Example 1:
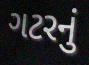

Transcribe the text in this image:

ગટરનું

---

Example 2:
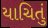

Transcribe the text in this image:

યાચિતું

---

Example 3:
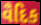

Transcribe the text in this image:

વૈદિક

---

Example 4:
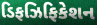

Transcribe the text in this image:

ડિફઝિફિકેશન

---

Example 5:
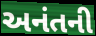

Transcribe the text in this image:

અનંતની